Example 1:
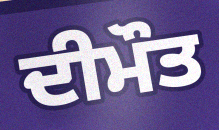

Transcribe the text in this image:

ਦੀਮੌਤ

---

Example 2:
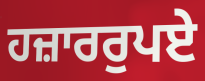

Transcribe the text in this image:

ਹਜ਼ਾਰਰੁਪਏ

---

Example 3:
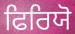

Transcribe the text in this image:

ਫਿਰਿਯੋ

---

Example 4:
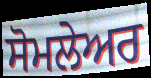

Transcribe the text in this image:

ਸੋਮਲੇਅਰ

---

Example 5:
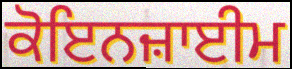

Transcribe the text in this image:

ਕੋਇਨਜ਼ਾਈਮ